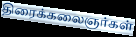
திரைக்கலைஞர்கள்